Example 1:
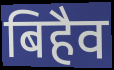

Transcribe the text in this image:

बिहैव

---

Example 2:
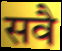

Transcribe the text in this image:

सवै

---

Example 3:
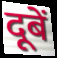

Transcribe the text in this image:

दूबें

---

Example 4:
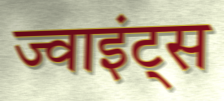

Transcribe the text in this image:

ज्वाइंट्स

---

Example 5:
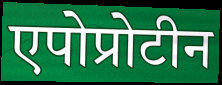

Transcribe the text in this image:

एपोप्रोटीन